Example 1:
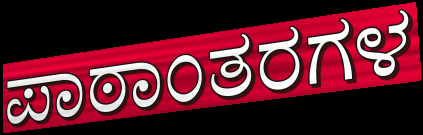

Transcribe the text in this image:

ಪಾಠಾಂತರಗಳ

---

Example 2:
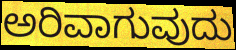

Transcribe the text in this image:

ಅರಿವಾಗುವುದು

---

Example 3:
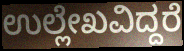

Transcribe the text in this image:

ಉಲ್ಲೇಖವಿದ್ದರೆ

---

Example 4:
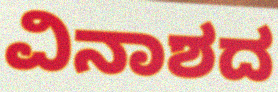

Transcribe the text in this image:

ವಿನಾಶದ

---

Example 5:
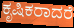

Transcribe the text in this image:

ಕೃಷಿಕರಾದರೆ